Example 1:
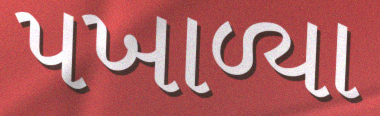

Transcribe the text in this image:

પખાળ્યા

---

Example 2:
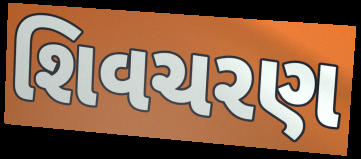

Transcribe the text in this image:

શિવચરણ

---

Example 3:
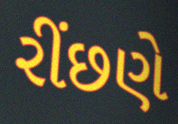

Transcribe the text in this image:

રીંછણે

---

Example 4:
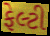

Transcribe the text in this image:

ફેલ્ટી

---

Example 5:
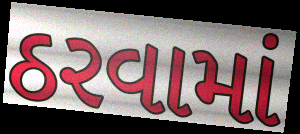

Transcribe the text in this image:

ઠરવામાં